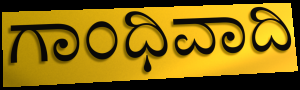
ಗಾಂಧಿವಾದಿ